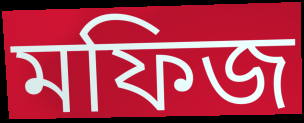
মফিজ